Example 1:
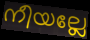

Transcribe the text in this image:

നീയല്ലേ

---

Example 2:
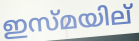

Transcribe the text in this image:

ഇസ്മയില്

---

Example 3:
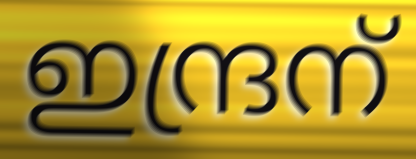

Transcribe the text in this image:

ഇന്ദ്രന്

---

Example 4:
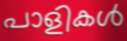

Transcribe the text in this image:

പാളികൾ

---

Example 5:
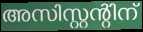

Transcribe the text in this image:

അസിസ്റ്റന്റിന്